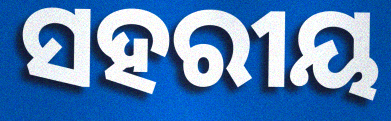
ସହରୀୟ